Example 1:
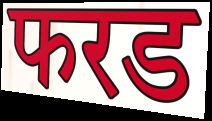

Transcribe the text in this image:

फरड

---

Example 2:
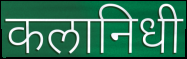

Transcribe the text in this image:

कलानिधी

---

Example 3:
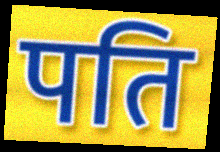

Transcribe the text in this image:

पति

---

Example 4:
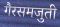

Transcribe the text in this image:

गैरसमजुती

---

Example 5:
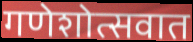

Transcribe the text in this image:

गणेशोत्सवात